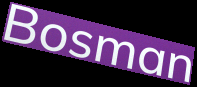
Bosman